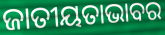
ଜାତୀୟତାଭାବର